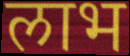
लाभ